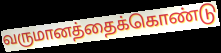
வருமானத்தைக்கொண்டு